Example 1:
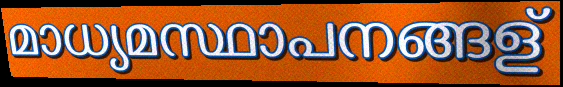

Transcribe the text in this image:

മാധ്യമസ്ഥാപനങ്ങള്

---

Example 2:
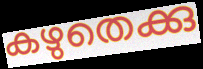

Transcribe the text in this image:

കഴുതെക്കു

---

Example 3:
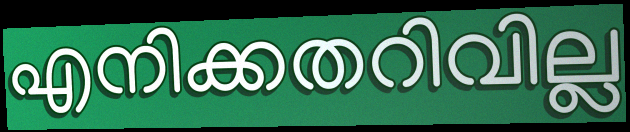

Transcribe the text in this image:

എനിക്കതറിവില്ല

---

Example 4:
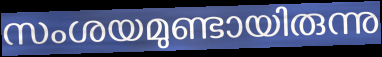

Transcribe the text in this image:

സംശയമുണ്ടായിരുന്നു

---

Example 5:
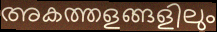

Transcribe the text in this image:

അകത്തളങ്ങളിലും